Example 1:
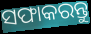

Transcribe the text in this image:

ସଫାକରନ୍ତୁ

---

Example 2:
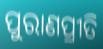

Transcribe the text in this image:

ପୁରାଣପ୍ରୀତି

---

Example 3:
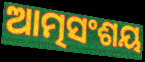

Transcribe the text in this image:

ଆତ୍ମସଂଶୟ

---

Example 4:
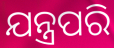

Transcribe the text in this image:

ଯନ୍ତ୍ରପରି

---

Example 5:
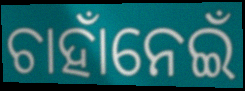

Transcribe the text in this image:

ଚାହାଁନେଇଁ